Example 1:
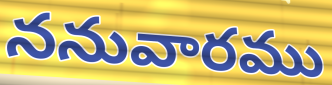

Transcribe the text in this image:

ననువారము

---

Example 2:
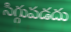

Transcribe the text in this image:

సిగ్గుపడదు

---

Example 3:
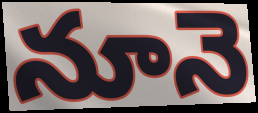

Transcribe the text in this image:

నూనె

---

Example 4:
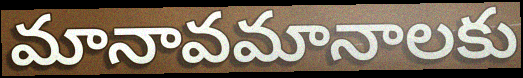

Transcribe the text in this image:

మానావమానాలకు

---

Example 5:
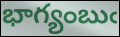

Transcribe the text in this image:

భాగ్యంబుఁ